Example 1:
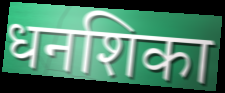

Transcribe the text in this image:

धनशिका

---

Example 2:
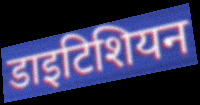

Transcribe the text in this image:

डाइटिशियन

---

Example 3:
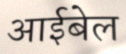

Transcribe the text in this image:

आईबेल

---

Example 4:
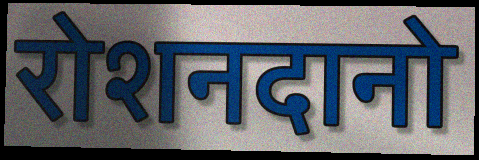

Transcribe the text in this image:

रोशनदानो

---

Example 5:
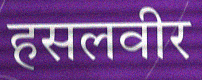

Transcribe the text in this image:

हसलवीर